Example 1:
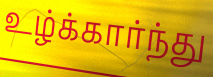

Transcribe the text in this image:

உழ்க்கார்ந்து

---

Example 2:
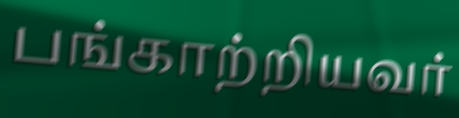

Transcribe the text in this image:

பங்காற்றியவர்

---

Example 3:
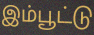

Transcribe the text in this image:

இம்பூட்டு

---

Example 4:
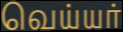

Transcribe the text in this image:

வெய்யர்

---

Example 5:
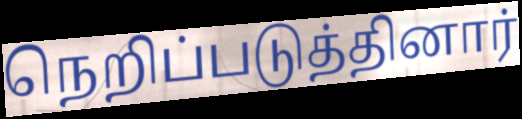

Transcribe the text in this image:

நெறிப்படுத்தினார்